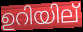
ഉറിയില്